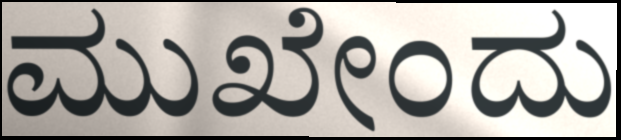
ಮುಖೇಂದು